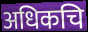
अधिकचि